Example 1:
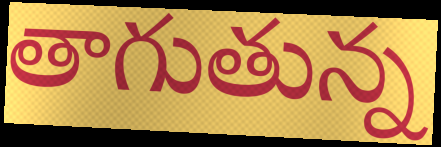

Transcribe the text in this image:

తాగుతున్న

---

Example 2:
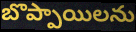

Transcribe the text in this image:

బొప్పాయిలను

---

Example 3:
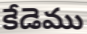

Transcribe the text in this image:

కేడెము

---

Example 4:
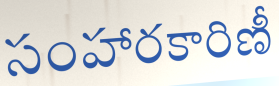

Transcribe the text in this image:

సంహారకారిణీ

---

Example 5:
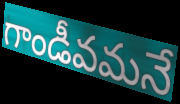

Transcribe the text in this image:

గాండీవమనే